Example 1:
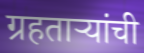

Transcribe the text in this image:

ग्रहताऱ्यांची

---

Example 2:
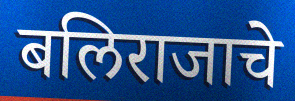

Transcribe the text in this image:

बलिराजाचे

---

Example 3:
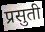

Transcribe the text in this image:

प्रसुती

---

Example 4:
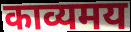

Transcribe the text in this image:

काव्यमय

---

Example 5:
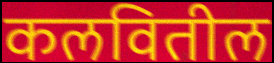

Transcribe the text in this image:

कलवितील